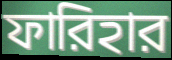
ফারিহার